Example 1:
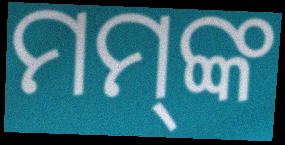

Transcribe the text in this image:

ମମ୍‌ଙ୍କ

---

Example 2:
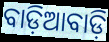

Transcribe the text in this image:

ବାଡ଼ିଆବାଡ଼ି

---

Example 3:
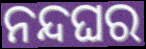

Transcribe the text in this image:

ନନ୍ଦଘର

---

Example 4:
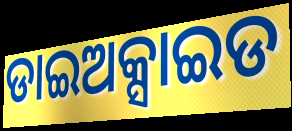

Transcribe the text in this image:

ଡାଇଅକ୍ସାଇଡ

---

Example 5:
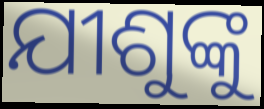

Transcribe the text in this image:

ଯୀଶୁଙ୍କୁ